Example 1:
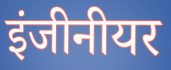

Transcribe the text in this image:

इंजीनीयर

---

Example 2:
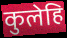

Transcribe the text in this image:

कुलेहि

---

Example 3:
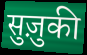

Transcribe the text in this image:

सुज़ुकी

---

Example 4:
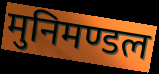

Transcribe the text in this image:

मुनिमण्डल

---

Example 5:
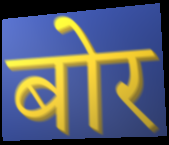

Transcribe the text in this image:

बोर